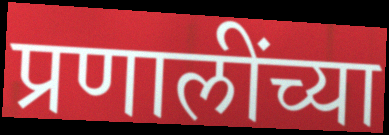
प्रणालींच्या